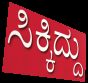
ಸಿಕ್ಕಿದ್ದು